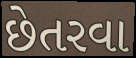
છેતરવા